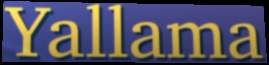
Yallama